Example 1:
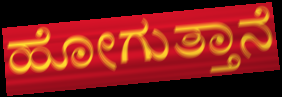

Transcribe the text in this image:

ಹೋಗುತ್ತಾನೆ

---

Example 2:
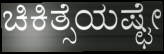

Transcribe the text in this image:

ಚಿಕಿತ್ಸೆಯಷ್ಟೇ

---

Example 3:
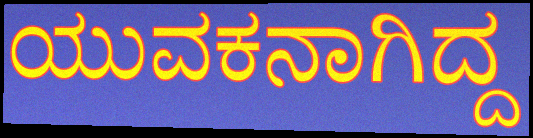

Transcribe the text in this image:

ಯುವಕನಾಗಿದ್ದ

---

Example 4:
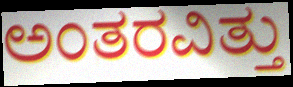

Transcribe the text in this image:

ಅಂತರವಿತ್ತು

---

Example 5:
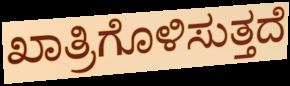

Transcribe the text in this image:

ಖಾತ್ರಿಗೊಳಿಸುತ್ತದೆ